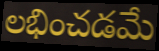
లభించడమే